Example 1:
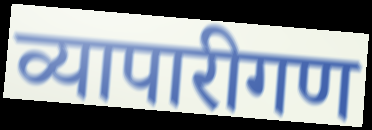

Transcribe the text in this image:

व्यापारीगण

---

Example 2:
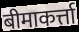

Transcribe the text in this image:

बीमाकर्त्ता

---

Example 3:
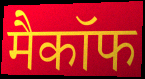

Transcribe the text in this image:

मैकॉफ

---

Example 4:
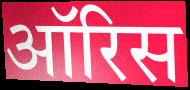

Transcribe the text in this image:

ऑरिस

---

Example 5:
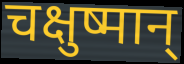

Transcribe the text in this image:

चक्षुष्मान्